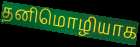
தனிமொழியாக